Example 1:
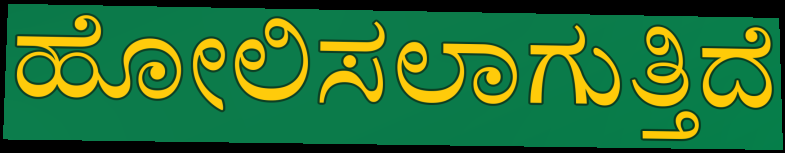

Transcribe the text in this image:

ಹೋಲಿಸಲಾಗುತ್ತಿದೆ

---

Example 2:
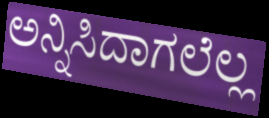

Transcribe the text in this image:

ಅನ್ನಿಸಿದಾಗಲೆಲ್ಲ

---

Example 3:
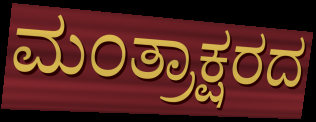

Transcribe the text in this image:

ಮಂತ್ರಾಕ್ಷರದ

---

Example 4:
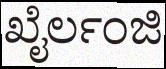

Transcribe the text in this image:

ಖೈರ್ಲಂಜಿ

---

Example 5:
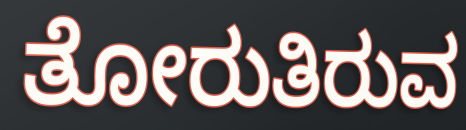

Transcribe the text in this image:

ತೋರುತಿರುವ